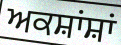
ਅਕਸ਼ਾਂਸ਼ਾਂ